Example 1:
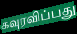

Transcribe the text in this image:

கவுரவிப்பது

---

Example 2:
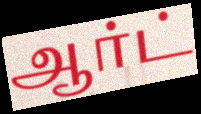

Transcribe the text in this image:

ஆர்ட்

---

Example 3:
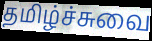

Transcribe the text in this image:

தமிழ்ச்சுவை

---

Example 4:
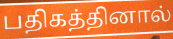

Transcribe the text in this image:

பதிகத்தினால்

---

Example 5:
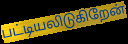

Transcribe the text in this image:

பட்டியலிடுகிறேன்